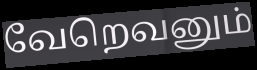
வேறெவனும்